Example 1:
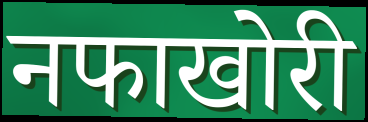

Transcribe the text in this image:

नफाखोरी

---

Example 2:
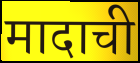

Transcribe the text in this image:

मादाची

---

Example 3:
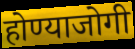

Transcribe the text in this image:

होण्याजोगी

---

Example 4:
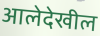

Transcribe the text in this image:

आलेदेखील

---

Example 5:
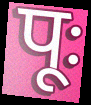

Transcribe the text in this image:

पूः